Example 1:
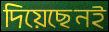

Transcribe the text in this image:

দিয়েছেনই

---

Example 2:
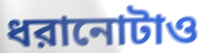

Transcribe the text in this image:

ধরানোটাও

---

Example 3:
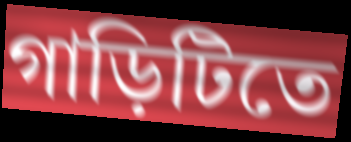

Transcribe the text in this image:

গাড়িটিতে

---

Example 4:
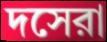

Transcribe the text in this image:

দসেরা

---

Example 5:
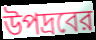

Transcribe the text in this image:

উপদ্রবের